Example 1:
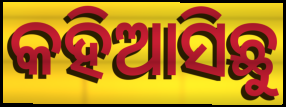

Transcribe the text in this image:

କହିଆସିଛୁ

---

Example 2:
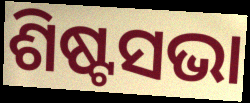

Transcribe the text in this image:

ଶିଷ୍ଟସଭା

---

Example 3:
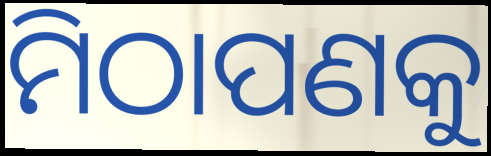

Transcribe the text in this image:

ମିଠାପଣକୁ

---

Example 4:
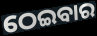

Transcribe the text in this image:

ଠେଇବାର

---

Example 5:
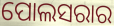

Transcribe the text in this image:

ପୋଲସରାର